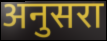
अनुसरा